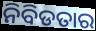
ନିବିଡତାର